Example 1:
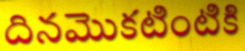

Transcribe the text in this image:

దినమొకటింటికి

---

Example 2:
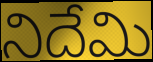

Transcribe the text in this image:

నిదేమి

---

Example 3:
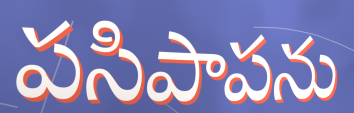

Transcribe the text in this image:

పసిపాపను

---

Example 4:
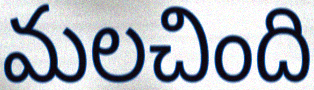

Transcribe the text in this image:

మలచింది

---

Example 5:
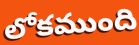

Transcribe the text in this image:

లోకముంది